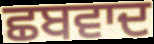
ਛਬਵਾਦ